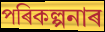
পৰিকল্পনাৰ